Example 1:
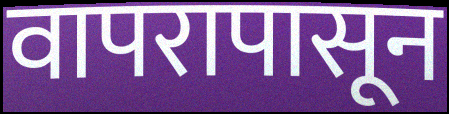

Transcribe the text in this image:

वापरापासून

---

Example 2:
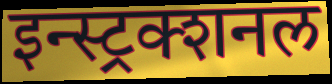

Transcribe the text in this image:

इन्स्ट्रक्शनल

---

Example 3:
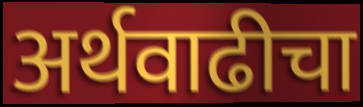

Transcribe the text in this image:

अर्थवाढीचा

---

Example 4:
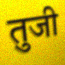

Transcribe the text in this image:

तुजी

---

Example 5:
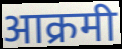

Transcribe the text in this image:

आक्रमी